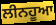
ਲੀਨਹੂਆ